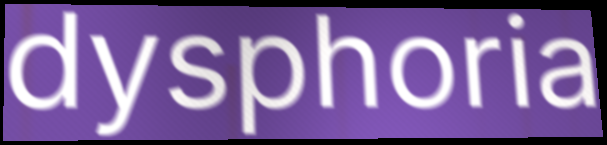
dysphoria